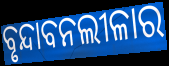
ବୃନ୍ଦାବନଲୀଳାର